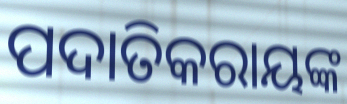
ପଦାତିକରାୟଙ୍କ